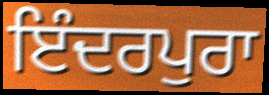
ਇੰਦਰਪੁਰਾ